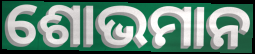
ଶୋଭମାନ